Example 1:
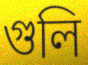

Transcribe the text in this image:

গুলি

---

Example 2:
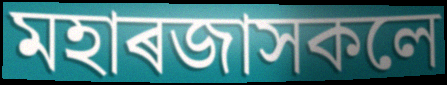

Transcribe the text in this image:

মহাৰজাসকলে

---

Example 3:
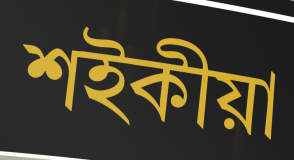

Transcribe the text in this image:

শইকীয়া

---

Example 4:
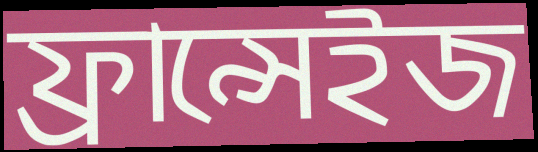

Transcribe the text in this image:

ফ্ৰান্সেইজ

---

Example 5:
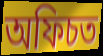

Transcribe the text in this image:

অফিচত